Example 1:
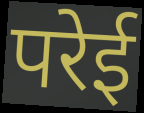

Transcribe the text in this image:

परेई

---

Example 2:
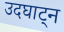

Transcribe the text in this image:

उदघाट्न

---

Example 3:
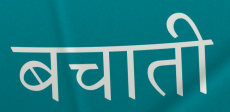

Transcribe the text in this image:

बचाती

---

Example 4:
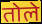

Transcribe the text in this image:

तोले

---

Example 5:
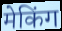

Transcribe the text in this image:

मेकिंग